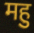
महु